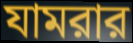
যামরার